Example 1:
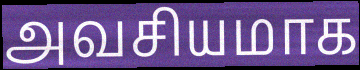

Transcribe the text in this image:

அவசியமாக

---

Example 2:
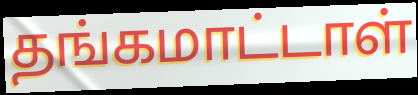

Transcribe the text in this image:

தங்கமாட்டாள்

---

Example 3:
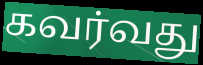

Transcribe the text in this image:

கவர்வது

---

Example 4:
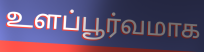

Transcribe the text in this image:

உளப்பூர்வமாக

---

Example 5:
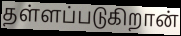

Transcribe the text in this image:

தள்ளப்படுகிறான்